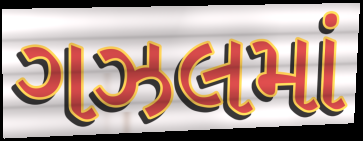
ગઝલમાં